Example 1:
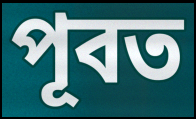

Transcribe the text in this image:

পূবত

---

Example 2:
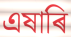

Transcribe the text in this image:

এষাৰি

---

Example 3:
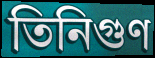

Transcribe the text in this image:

তিনিগুণ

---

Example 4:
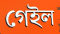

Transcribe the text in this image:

গেইল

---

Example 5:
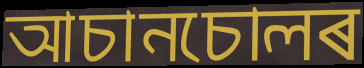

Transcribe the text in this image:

আচানচোলৰ